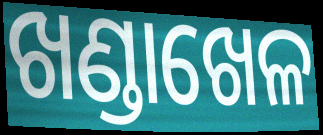
ଖଣ୍ଡାଖେଳ